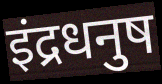
इंद्रधनुष